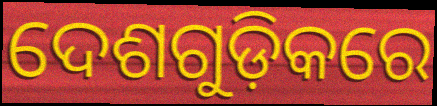
ଦେଶଗୁଡ଼ିକରେ